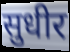
सुधीर